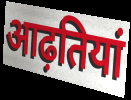
आढ़तियां